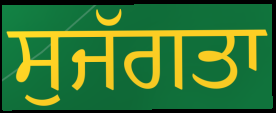
ਸੁਜੱਗਤਾ